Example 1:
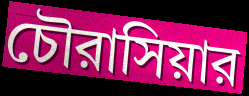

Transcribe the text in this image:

চৌরাসিয়ার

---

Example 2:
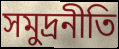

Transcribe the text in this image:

সমুদ্রনীতি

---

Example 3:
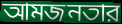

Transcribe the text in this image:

আমজনতার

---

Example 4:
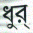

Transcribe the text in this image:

ধুর্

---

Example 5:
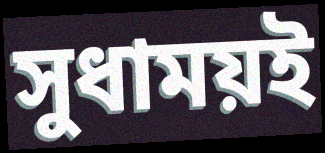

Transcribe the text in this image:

সুধাময়ই